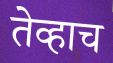
तेव्हाच